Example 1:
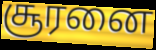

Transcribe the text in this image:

சூரனை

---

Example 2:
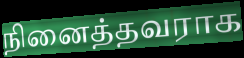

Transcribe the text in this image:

நினைத்தவராக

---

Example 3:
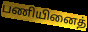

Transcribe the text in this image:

பணியினைத்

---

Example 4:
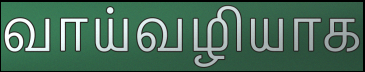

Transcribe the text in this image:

வாய்வழியாக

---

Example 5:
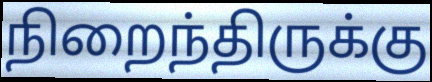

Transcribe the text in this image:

நிறைந்திருக்கு